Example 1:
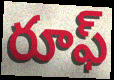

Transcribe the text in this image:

రూఫ్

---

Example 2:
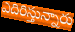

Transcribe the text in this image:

ఎదిరిస్తున్నారు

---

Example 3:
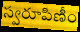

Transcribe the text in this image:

స్వరూపిణీం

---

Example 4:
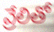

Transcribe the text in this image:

వ్రేలితో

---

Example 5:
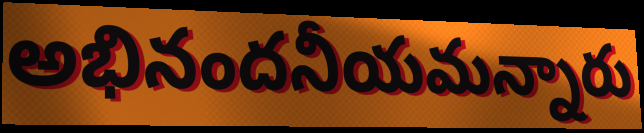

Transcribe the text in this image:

అభినందనీయమన్నారు